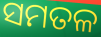
ସମତଳ